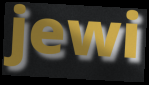
jewi